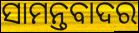
ସାମନ୍ତବାଦର